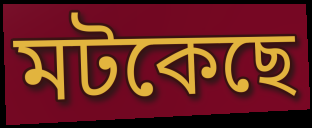
মটকেছে